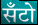
सँटो